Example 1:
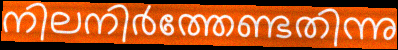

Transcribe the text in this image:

നിലനിർത്തേണ്ടതിന്നു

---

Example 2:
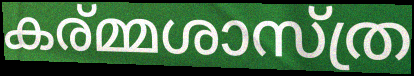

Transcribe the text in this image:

കര്മ്മശാസ്ത്ര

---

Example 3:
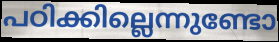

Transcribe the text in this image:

പഠിക്കില്ലെന്നുണ്ടോ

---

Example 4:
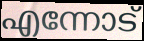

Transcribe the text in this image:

എന്നോട്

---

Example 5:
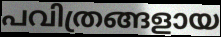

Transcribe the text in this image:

പവിത്രങ്ങളായ